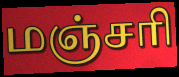
மஞ்சரி